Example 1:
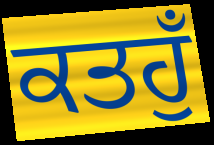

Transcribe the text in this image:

ਕਤਹੁਁ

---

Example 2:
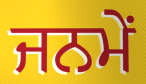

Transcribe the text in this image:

ਜਨਮੇਂ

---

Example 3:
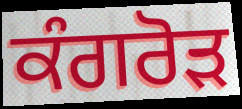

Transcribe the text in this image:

ਕੰਗਰੋੜ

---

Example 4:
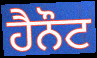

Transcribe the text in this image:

ਹੈਨੌਟ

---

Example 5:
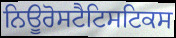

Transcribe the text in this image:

ਨਿਊਰੋਸਟੈਟਿਸਟਿਕਸ